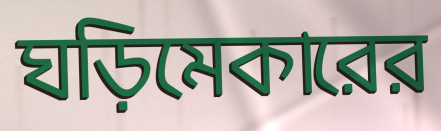
ঘড়িমেকারের